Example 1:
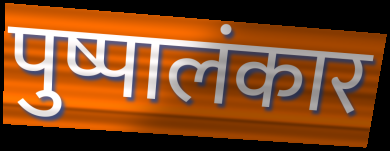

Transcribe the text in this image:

पुष्पालंकार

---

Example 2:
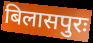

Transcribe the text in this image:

बिलासपुरः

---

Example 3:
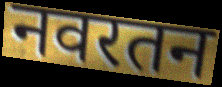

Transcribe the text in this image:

नवरतन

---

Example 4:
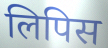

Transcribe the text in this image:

लिपिस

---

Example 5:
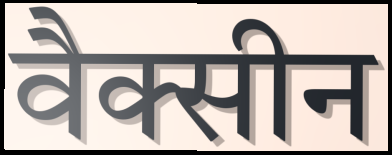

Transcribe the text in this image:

वैक्‍सीन